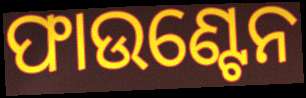
ଫାଉଣ୍ଟେନ